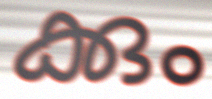
ക്കും